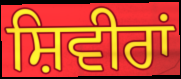
ਸ਼ਿਵੀਰਾਂ